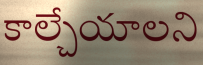
కాల్చేయాలని